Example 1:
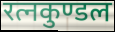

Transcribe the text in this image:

रत्नकुण्डल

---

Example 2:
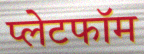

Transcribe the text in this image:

प्लेटफॉम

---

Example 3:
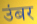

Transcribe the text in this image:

उंबर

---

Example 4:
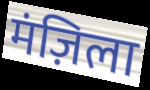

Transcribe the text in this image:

मंज़िला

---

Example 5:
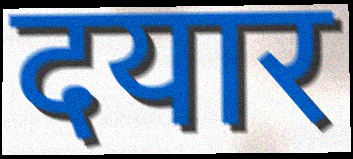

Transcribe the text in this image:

दयार